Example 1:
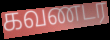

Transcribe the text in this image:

கவணடர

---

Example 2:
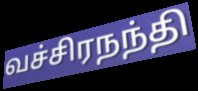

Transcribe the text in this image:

வச்சிரநந்தி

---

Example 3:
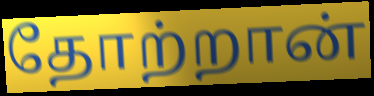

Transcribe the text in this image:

தோற்றான்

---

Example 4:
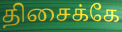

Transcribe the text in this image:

திசைக்கே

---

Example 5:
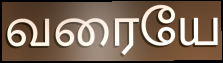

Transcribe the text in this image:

வரையே